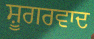
ਸ਼ੂਗਰਵਾਦ